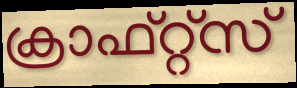
ക്രാഫ്റ്റ്സ്